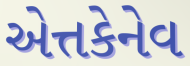
એત્તકેનેવ